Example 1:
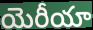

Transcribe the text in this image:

యెరీయా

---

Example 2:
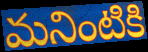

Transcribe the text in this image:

మనింటికి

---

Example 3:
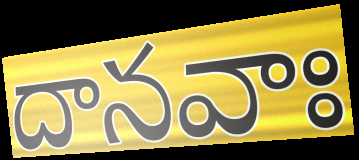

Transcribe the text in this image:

దానవాః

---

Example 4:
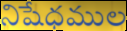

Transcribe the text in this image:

నిషేధముల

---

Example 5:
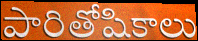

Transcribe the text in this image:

పారితోషికాలు